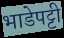
भाडेपट्टी